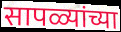
सापळ्यांच्या